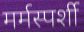
मर्मस्पर्शी